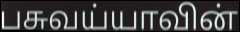
பசுவய்யாவின்